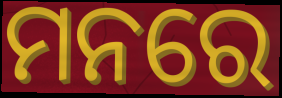
ମନରେ